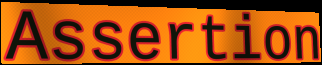
Assertion